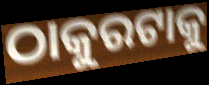
ଠାକୁରଟାକୁ